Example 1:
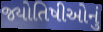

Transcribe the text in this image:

જ્યોતિષીઓનું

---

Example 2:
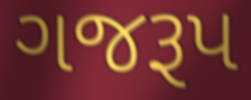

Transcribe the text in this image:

ગજરૂપ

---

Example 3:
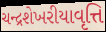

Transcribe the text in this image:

ચન્દ્રશેખરીયાવૃત્તિ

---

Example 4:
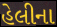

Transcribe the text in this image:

હેલીના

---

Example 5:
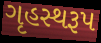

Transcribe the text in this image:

ગૃહસ્થરૂપ